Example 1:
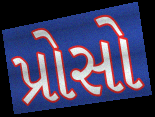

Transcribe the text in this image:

પ્રોસો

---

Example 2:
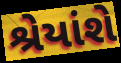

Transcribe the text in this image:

શ્રેયાંશે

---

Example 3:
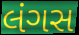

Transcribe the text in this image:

લંગસ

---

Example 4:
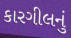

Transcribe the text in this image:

કારગીલનું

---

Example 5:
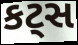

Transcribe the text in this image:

કટ્સ